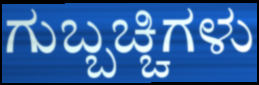
ಗುಬ್ಬಚ್ಚಿಗಳು